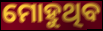
ମୋହୁଥିବ